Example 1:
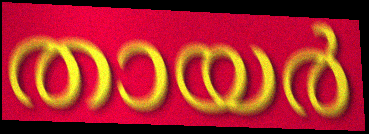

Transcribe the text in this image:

തായർ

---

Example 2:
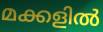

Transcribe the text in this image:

മക്കളിൽ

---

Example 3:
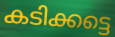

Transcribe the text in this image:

കടിക്കട്ടെ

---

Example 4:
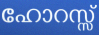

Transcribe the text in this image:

ഹോറസ്സ്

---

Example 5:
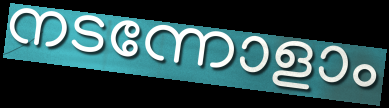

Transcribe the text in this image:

നടന്നോളാം